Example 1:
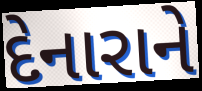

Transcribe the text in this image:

દેનારાને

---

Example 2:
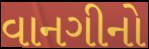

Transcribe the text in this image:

વાનગીનો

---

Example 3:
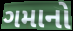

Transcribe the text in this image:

ગમાનો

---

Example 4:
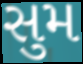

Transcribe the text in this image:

સુમ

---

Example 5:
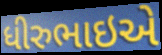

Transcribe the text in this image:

ધીરુભાઇએ